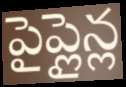
పైప్లైన్ల